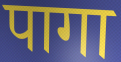
पागा